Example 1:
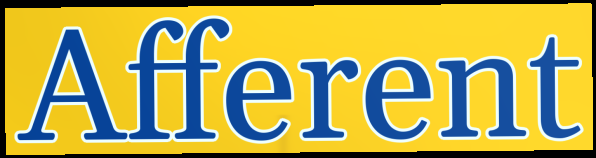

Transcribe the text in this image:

Afferent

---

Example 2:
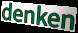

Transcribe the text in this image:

denken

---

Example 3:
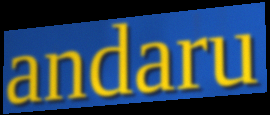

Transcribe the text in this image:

andaru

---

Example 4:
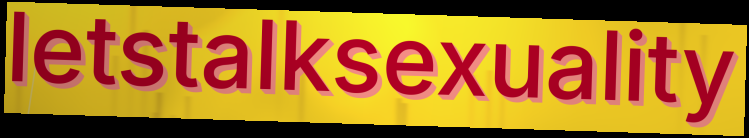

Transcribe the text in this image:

letstalksexuality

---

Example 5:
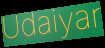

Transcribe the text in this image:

Udaiyar